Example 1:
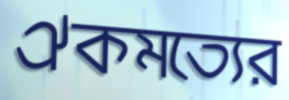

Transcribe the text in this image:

ঐকমত্যের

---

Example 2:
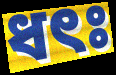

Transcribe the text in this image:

ধৎঃ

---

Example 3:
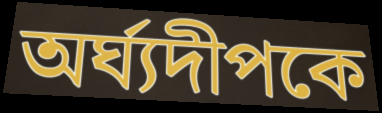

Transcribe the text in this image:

অর্ঘ্যদীপকে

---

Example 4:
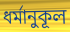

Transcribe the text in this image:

ধর্মানুকূল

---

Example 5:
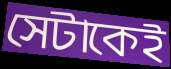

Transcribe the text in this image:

সেটাকেই